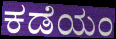
ಕಡೆಯಂ